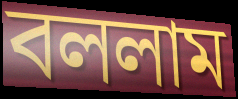
বললাম